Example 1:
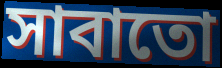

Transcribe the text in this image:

সাবাতো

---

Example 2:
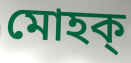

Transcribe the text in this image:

মোহক্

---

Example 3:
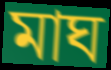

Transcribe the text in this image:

মাঘ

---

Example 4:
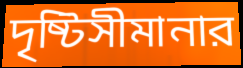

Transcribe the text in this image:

দৃষ্টিসীমানার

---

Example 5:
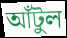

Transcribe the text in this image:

আঁটুল